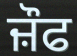
ਜ਼ੌਫ